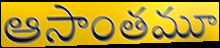
ఆసాంతమూ